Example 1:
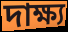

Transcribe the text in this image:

দাক্ষ্য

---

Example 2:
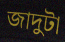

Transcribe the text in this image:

জাদুটা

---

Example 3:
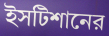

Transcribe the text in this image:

ইসটিশানের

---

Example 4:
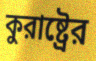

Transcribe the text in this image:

কুরাষ্ট্রের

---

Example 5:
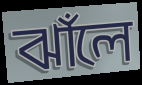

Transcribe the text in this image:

ঝাঁলে